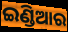
ଇଣ୍ଡିଆର